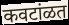
कवटांळत